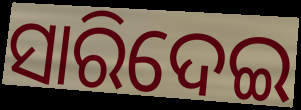
ସାରିଦେଇ